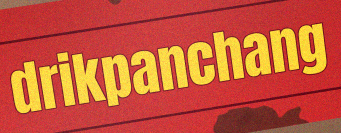
drikpanchang